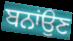
ਬਨਾਂਉਣ